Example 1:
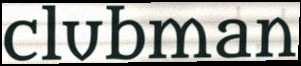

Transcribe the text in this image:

clubman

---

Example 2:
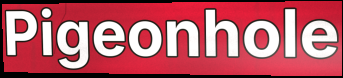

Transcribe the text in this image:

Pigeonhole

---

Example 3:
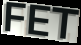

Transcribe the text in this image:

FET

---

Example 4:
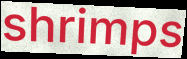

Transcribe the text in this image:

shrimps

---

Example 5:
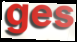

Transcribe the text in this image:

ges